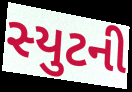
સ્યુટની